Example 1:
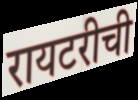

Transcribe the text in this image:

रायटरीची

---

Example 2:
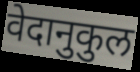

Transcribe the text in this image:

वेदानुकुल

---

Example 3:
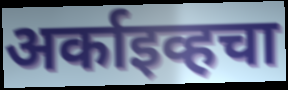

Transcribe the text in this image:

अर्काइव्हचा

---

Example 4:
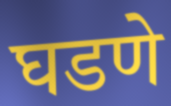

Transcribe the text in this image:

घडणे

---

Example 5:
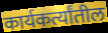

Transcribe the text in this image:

कार्यकर्त्यांतील